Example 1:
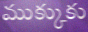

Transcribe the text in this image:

ముక్కుకు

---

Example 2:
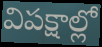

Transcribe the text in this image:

విపక్షాల్లో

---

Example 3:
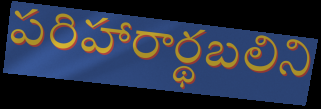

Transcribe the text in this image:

పరిహారార్థబలిని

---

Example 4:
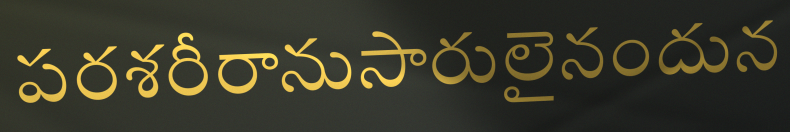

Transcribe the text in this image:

పరశరీరానుసారులైనందున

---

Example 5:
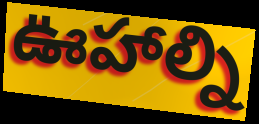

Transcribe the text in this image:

ఊహాల్ని